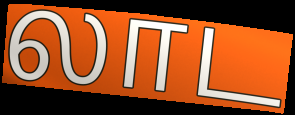
லாட